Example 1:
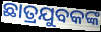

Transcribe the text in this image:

ଛାତ୍ରଯୁବକଙ୍କ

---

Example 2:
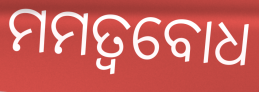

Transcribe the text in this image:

ମମତ୍ବବୋଧ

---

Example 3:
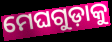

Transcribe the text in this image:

ମେଘଗୁଡ଼ାକୁ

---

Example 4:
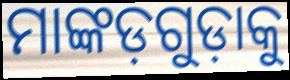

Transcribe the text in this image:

ମାଙ୍କଡ଼ଗୁଡ଼ାକୁ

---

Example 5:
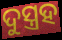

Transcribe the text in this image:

ଦୁସ୍ତ୍ରହ